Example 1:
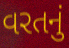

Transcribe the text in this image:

વરતનું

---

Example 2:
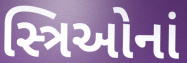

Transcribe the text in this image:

સ્ત્રિઓનાં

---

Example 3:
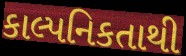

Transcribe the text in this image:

કાલ્પનિકતાથી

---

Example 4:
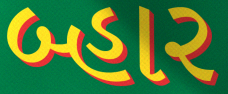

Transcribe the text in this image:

બ્હાર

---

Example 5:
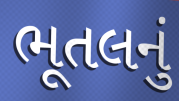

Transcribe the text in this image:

ભૂતલનું